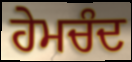
ਹੇਮਚੰਦ